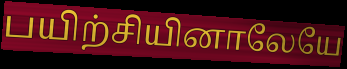
பயிற்சியினாலேயே